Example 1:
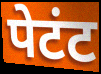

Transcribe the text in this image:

पेटंट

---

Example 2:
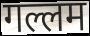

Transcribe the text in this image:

गल्लम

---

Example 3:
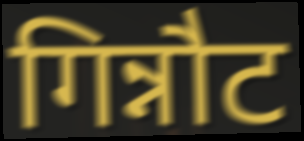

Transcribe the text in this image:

गिन्नौट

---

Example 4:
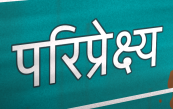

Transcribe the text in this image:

परिप्रेक्ष्य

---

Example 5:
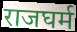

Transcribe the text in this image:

राजघर्म